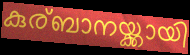
കുര്ബാനയ്ക്കായി